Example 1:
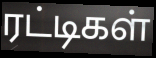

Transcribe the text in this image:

ரட்டிகள்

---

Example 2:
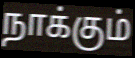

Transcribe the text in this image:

நாக்கும்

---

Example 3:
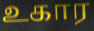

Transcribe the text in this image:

உகார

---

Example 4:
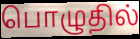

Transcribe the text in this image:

பொழுதில்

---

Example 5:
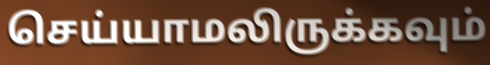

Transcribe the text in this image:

செய்யாமலிருக்கவும்